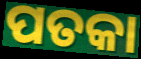
ପତକା